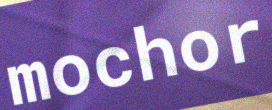
mochor